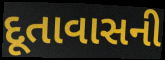
દૂતાવાસની